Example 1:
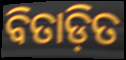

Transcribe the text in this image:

ବିତାଡ଼ିତ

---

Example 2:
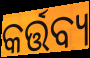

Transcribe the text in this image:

କର୍ତ୍ତବ୍ୟ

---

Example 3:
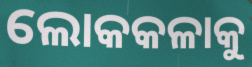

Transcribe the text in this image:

ଲୋକକଳାକୁ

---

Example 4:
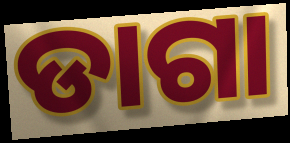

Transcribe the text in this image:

ଡାଗା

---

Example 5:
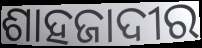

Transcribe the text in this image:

ଶାହଜାଦୀର